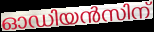
ഓഡിയൻസിന്